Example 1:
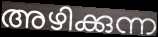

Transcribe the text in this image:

അഴിക്കുന്ന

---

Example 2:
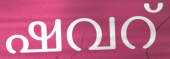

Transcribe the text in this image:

ഷവറ്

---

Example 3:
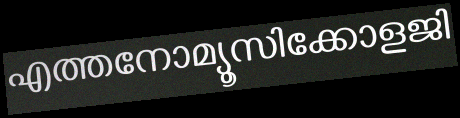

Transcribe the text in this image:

എത്തനോമ്യൂസിക്കോളജി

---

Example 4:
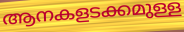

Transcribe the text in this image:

ആനകളടക്കമുള്ള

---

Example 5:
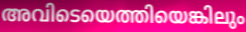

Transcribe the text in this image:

അവിടെയെത്തിയെങ്കിലും